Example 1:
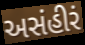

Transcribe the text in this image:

અસંહીરં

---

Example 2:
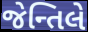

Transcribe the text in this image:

જેન્તિલે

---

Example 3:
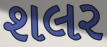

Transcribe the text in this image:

શલર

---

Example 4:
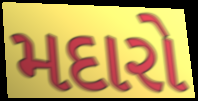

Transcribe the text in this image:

મદારો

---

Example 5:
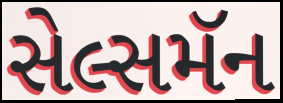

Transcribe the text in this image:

સેલ્સમૅન